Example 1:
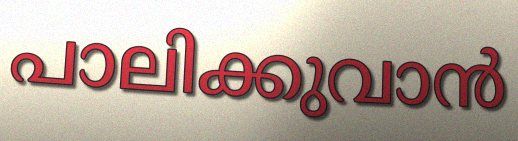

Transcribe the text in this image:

പാലിക്കുവാൻ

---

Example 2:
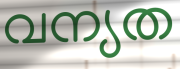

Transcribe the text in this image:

വന്യത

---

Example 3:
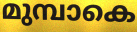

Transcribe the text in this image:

മുമ്പാകെ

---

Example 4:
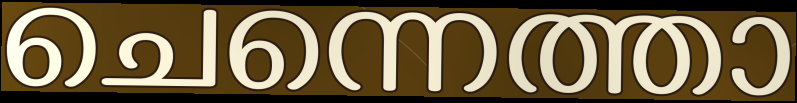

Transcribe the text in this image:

ചെന്നെത്താ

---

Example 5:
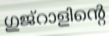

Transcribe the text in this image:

ഗുജ്റാളിന്റെ